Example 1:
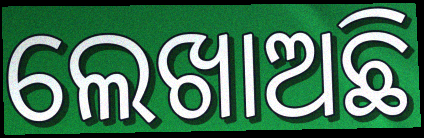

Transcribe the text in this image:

ଲେଖାଅଛି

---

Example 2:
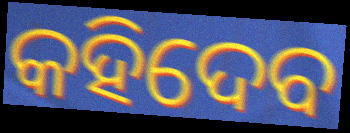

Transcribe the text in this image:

କହିଦେବ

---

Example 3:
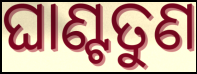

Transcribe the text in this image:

ଘାଣ୍ଟତୁଣ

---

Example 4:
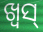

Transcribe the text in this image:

ଖ୍ୱସ୍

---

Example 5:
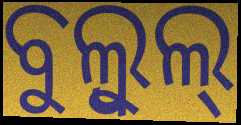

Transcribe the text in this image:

ବୁଲ୍ବୁଲ୍